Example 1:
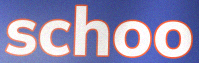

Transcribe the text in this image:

schoo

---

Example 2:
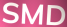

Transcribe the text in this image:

SMD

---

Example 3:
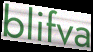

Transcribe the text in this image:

blifva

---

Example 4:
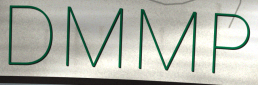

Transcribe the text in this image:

DMMP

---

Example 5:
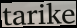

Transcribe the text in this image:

tarike